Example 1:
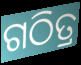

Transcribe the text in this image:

ଗଠିତ୍ର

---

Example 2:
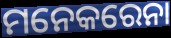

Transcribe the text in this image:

ମନେକରେନା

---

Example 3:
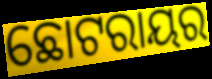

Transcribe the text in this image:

ଛୋଟରାୟର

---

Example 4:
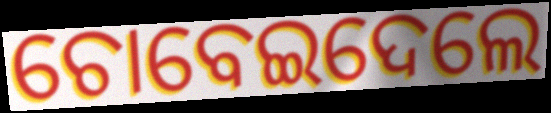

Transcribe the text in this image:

ଚୋବେଇଦେଲେ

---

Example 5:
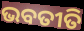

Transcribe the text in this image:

ଭବତୀତି